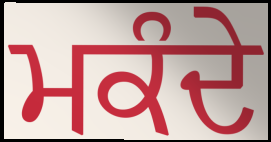
ਮਕੰਦੇ